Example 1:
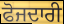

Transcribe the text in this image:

ਫੋਜਦਾਰੀ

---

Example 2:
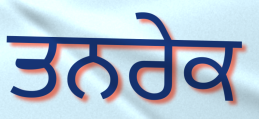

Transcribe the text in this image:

ਤਨਰੇਕ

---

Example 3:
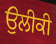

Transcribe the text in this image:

ਉਲੀਕੀ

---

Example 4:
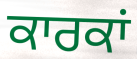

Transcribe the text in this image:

ਕਾਰਕਾਂ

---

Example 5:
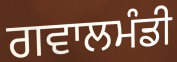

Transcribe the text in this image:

ਗਵਾਲਮੰਡੀ